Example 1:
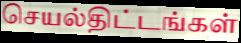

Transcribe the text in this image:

செயல்திட்டங்கள்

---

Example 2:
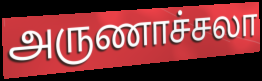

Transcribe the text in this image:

அருணாச்சலா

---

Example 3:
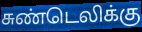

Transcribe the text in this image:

சுண்டெலிக்கு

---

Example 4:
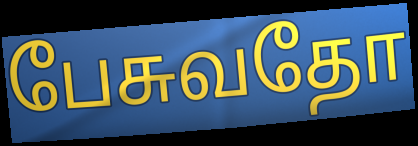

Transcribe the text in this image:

பேசுவதோ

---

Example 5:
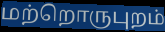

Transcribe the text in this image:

மற்றொருபுறம்